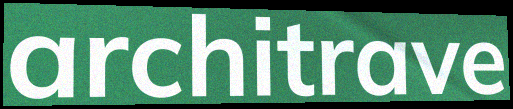
architrave